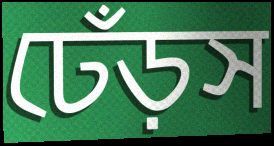
ঢেঁড়স